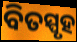
ବିତସ୍ପୃହ